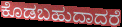
ಕೊಡಬಹುದಾದರೆ